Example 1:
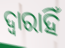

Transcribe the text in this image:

ଦ୍ୱାରାହିଁ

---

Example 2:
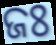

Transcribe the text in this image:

ଜଃ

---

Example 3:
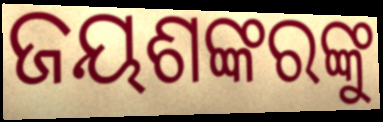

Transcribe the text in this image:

ଜୟଶଙ୍କରଙ୍କୁ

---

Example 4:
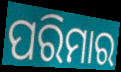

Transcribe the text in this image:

ପରିମାର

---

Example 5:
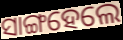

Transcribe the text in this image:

ସାଙ୍ଗହେଲେ